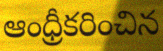
ఆంధ్రీకరించిన